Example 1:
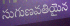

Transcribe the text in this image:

సుగుణవతియైన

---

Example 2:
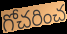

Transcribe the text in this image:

గోచరించ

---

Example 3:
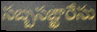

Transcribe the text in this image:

సబ్బసఙ్ఖారేసు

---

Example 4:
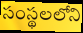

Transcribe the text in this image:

సంస్థలలోని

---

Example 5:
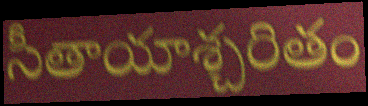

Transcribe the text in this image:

సీతాయాశ్చరితం